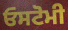
ਓਸਟੋਮੀ